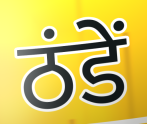
ठंडें